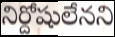
నిర్దోషులేనని